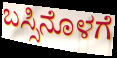
ಬಸ್ಸಿನೊಳಗೆ